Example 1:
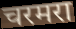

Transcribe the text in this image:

चरमरा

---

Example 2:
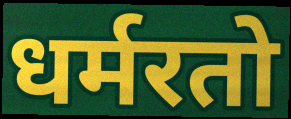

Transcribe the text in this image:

धर्मरतो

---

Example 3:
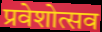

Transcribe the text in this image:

प्रवेशोत्सव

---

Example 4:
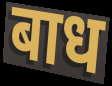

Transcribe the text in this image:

बाध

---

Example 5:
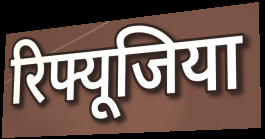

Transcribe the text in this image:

रिफ्यूजिया